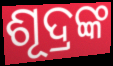
ଶୂଦ୍ରଙ୍କ